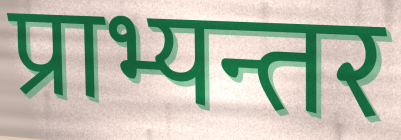
प्राभ्यन्तर